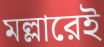
মল্লারেই